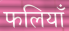
फलियाँ